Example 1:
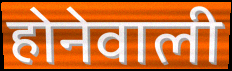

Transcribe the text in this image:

होनेवाली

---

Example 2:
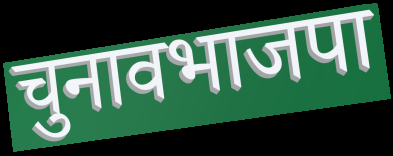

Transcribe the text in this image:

चुनावभाजपा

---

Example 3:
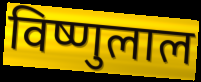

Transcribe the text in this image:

विष्णुलाल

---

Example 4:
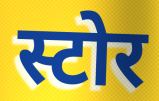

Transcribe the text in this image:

स्टोर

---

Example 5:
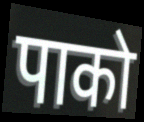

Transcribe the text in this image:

पाको